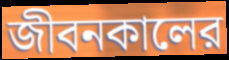
জীবনকালের